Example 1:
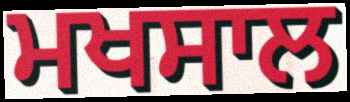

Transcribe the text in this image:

ਮਖਸਾਲ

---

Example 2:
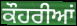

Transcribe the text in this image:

ਕੌਹਰੀਆਂ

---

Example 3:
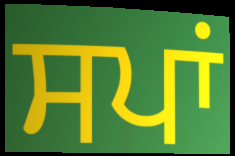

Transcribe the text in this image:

ਸਪਾਂ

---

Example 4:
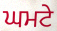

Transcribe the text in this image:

ਘਮਟੇ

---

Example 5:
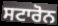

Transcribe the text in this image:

ਸਟਾਰੋਨ